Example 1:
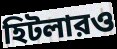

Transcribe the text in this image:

হিটলারও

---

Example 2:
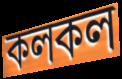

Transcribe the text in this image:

কলকল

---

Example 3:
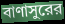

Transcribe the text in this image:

বাণাসুরের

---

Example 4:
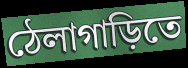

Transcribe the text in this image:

ঠেলাগাড়িতে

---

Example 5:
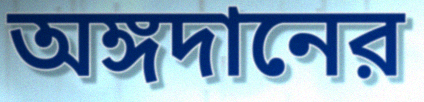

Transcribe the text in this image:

অঙ্গদানের